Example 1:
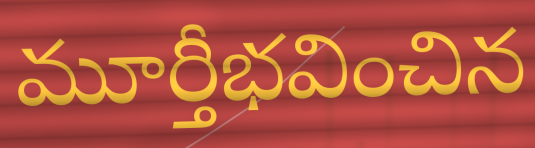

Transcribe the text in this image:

మూర్తీభవించిన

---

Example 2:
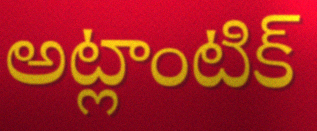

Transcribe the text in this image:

అట్లాంటిక్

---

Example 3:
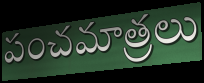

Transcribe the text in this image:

పంచమాత్రలు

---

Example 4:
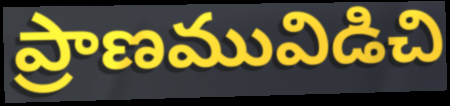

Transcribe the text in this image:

ప్రాణమువిడిచి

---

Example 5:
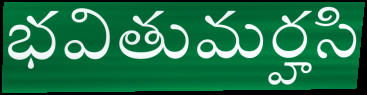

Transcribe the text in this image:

భవితుమర్హసి